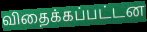
விதைக்கப்பட்டன